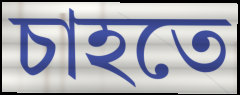
চাহতে